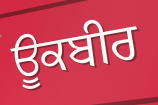
ਊਕਬੀਰ